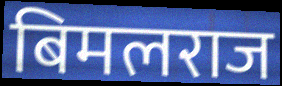
बिमलराज